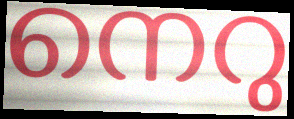
നെറു